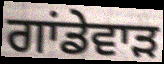
ਗਾਂਡੇਵਾੜ